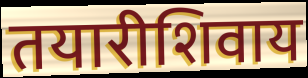
तयारीशिवाय